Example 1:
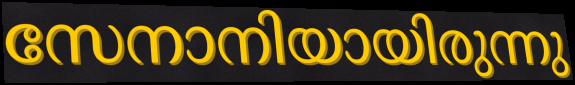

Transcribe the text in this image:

സേനാനിയായിരുന്നു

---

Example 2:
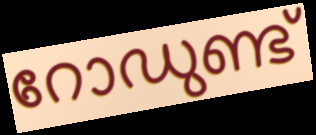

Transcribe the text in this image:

റോഡുണ്ട്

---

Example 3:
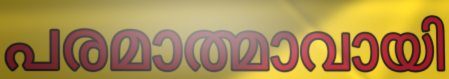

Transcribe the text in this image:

പരമാത്മാവായി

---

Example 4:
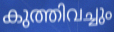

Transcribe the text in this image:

കുത്തിവച്ചും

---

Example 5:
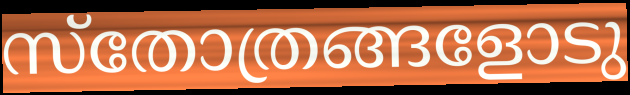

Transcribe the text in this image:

സ്തോത്രങ്ങളോടു